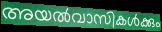
അയൽവാസികൾക്കും